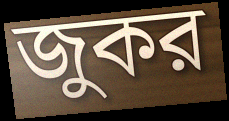
জুকর